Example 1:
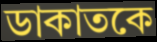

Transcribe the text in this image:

ডাকাতকে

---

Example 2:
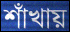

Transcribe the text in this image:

শাঁখায়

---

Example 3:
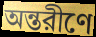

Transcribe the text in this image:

অন্তরীণে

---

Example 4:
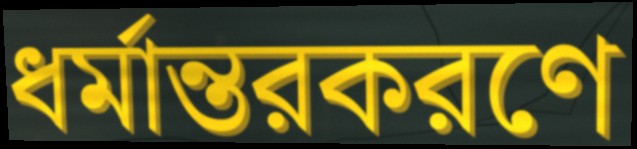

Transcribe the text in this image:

ধর্মান্তরকরণে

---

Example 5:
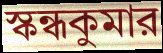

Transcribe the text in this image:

স্কন্ধকুমার